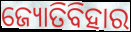
ଜ୍ୟୋତିବିହାର